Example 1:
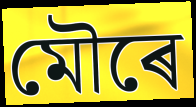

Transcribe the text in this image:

মৌৰে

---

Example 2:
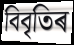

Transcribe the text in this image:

বিবৃতিৰ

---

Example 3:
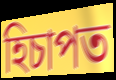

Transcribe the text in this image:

হিচাপত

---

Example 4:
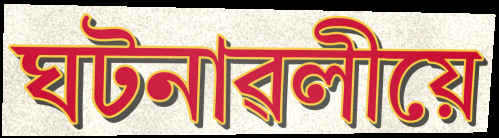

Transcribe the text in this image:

ঘটনাৱলীয়ে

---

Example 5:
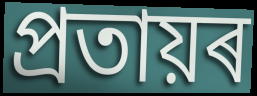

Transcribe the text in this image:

প্ৰতায়ৰ